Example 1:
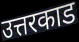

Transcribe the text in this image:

उत्तरकाड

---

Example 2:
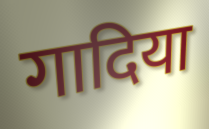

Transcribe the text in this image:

गादिया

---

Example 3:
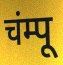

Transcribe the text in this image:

चंम्पू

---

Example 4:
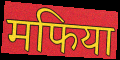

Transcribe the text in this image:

मफिया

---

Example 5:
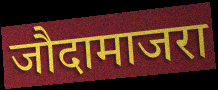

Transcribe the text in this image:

जौदामाजरा